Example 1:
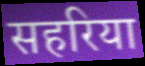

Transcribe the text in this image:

सहरिया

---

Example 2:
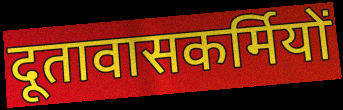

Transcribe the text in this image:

दूतावासकर्मियों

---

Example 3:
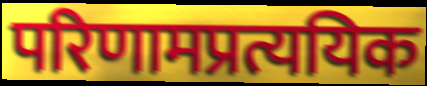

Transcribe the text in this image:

परिणामप्रत्ययिक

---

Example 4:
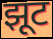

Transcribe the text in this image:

झूट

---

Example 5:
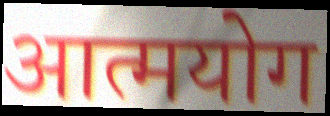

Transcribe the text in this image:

आत्मयोग